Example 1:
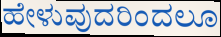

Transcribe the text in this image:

ಹೇಳುವುದರಿಂದಲೂ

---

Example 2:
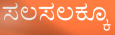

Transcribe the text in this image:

ಸಲಸಲಕ್ಕೂ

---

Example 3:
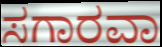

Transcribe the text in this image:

ಸಗಾರವಾ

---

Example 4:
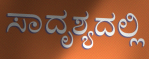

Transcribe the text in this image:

ಸಾದೃಶ್ಯದಲ್ಲಿ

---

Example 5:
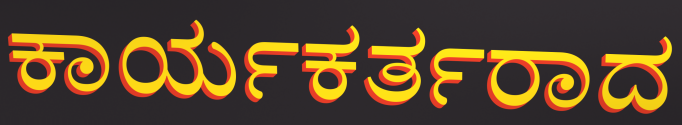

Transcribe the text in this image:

ಕಾರ್ಯಕರ್ತರಾದ